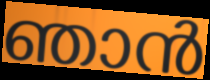
ഞാൻ